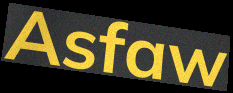
Asfaw